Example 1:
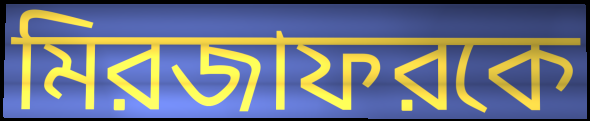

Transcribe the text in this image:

মিরজাফরকে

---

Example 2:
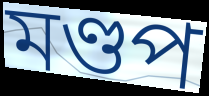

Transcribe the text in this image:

মণ্ডপ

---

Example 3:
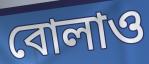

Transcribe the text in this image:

বোলাও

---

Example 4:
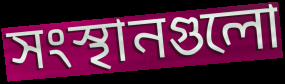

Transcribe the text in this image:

সংস্থানগুলো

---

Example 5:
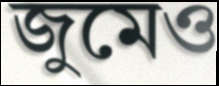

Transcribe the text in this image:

জুমেও